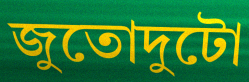
জুতোদুটো